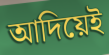
আদিয়েই